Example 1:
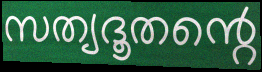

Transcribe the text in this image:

സത്യദൂതന്റെ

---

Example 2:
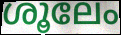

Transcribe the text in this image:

ശൂലേം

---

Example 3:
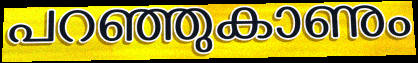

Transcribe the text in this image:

പറഞ്ഞുകാണും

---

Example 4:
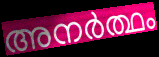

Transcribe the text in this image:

അനർത്ഥം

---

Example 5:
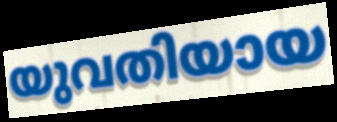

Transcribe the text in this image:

യുവതിയായ